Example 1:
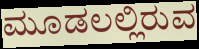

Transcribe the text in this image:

ಮೂಡಲಲ್ಲಿರುವ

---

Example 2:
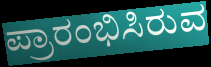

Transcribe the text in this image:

ಪ್ರಾರಂಭಿಸಿರುವ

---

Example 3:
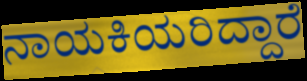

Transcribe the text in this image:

ನಾಯಕಿಯರಿದ್ದಾರೆ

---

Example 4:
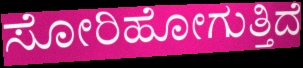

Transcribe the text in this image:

ಸೋರಿಹೋಗುತ್ತಿದೆ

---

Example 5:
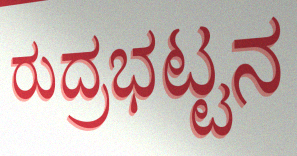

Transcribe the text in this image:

ರುದ್ರಭಟ್ಟನ